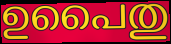
ഉപൈതു